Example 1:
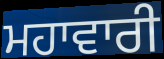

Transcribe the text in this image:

ਮਹਾਵਾਰੀ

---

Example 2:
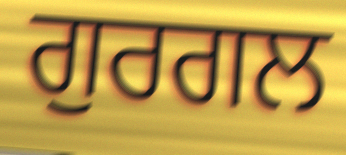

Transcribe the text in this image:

ਗੁਰਗਲ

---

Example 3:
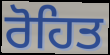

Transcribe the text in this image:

ਰੋਹਿਤ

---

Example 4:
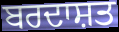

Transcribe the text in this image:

ਬਰਦਾਸ਼ਤ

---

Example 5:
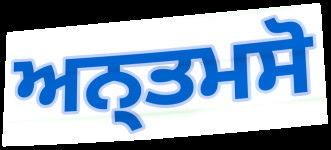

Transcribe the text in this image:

ਅਨ੍ਤਮਸੋ